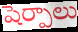
షెర్పాలు